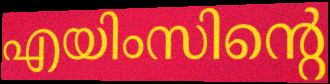
എയിംസിന്റെ